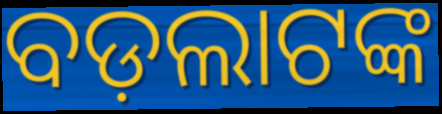
ବଡ଼ଲାଟଙ୍କ